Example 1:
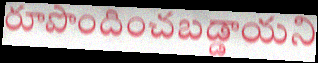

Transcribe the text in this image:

రూపొందించబడ్డాయని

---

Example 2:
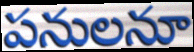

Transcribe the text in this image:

పనులనూ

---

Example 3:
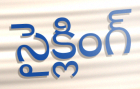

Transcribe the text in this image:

సైక్లింగ్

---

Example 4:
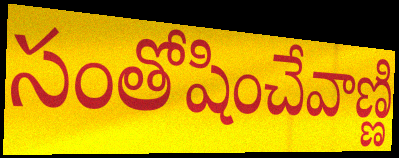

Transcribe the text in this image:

సంతోషించేవాణ్ణి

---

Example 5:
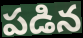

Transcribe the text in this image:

పడిన